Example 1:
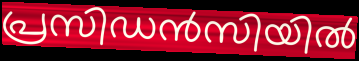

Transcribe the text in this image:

പ്രസിഡൻസിയിൽ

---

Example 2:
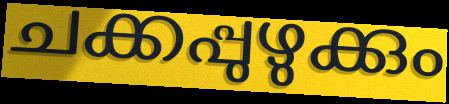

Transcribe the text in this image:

ചക്കപ്പുഴുക്കും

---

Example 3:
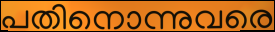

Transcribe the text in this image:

പതിനൊന്നുവരെ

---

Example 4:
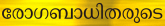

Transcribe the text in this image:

രോഗബാധിതരുടെ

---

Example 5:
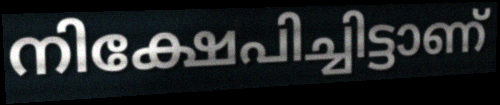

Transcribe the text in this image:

നിക്ഷേപിച്ചിട്ടാണ്